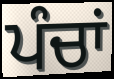
ਪੰਚਾਂ